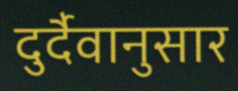
दुर्दैवानुसार